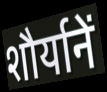
शौर्यानें